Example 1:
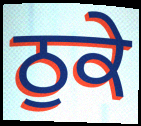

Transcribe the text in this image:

ਠੁਕੇ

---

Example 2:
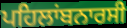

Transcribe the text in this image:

ਪਹਿਲਾਂਬਨਾਰਸੀ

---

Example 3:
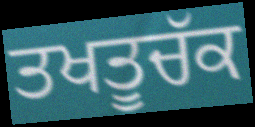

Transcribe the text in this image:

ਤਖਤੂਚੱਕ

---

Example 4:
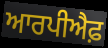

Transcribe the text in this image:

ਆਰਪੀਐਫ਼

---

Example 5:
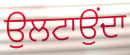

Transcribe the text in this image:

ਉਲਟਾਉਂਦਾ